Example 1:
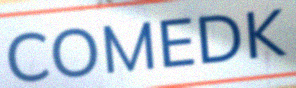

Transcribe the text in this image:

COMEDK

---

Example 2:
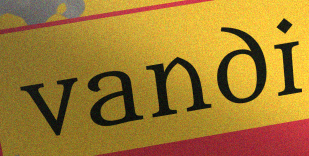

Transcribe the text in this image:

vandi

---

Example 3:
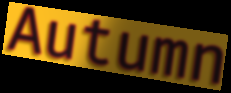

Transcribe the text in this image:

Autumn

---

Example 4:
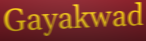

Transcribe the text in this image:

Gayakwad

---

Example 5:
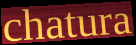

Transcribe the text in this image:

chatura